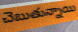
చెబుతున్నాయి